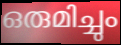
ഒരുമിച്ചും